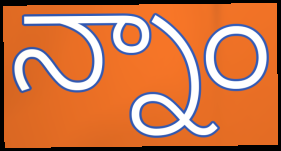
న్నాం